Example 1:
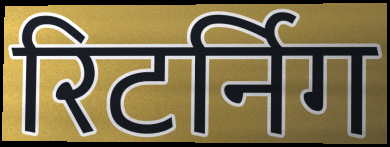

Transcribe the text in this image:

रिटर्निग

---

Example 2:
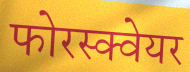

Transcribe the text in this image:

फोरस्क्वेयर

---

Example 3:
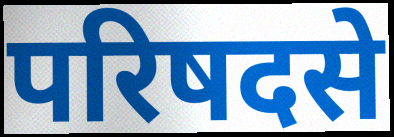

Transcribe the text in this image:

परिषदसे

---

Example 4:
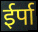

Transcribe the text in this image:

ईर्पा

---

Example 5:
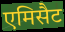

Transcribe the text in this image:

एमिसैट